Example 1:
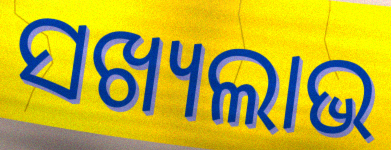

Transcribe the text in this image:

ସଖ୍ୟଲାଭ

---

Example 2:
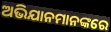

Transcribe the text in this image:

ଅଭିଯାନମାନଙ୍କରେ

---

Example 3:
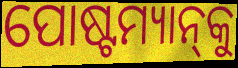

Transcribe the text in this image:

ପୋଷ୍ଟମ୍ୟାନ୍‌କୁ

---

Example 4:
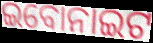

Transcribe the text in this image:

ଇବୋନାଇଟ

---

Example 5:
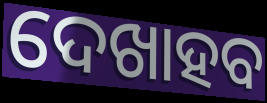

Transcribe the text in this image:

ଦେଖାହବ